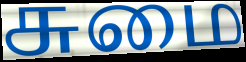
சுமை